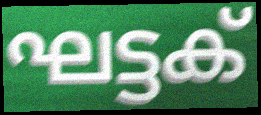
ഘട്ടക്